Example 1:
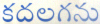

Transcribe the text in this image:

కదలగను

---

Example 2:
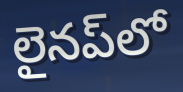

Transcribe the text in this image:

లైనప్‌లో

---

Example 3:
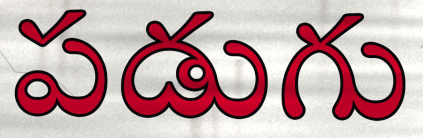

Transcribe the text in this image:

పడుగు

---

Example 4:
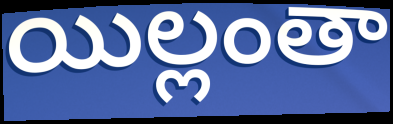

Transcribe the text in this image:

యిల్లంతా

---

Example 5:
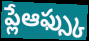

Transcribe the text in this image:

ప్లేఆఫ్స్కు